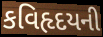
કવિહૃદયની